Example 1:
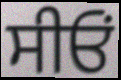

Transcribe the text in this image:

ਸੀਓਂ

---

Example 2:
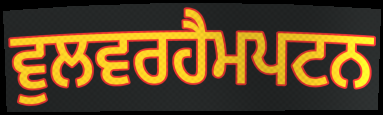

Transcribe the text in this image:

ਵੁਲਵਰਹੈਮਪਟਨ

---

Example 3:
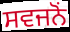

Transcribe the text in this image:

ਸਵਜਨੋਂ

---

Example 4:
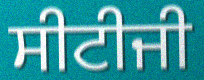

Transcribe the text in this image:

ਸੀਟੀਜੀ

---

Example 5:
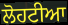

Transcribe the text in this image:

ਲੋਹਟੀਆ